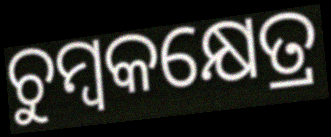
ଚୁମ୍ବକକ୍ଷେତ୍ର